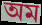
অম